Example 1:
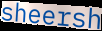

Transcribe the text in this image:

sheersh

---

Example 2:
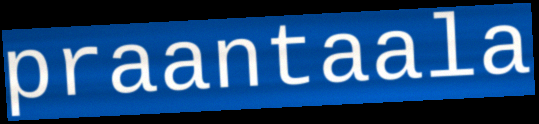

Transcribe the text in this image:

praantaala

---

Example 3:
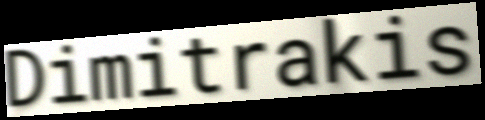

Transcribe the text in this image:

Dimitrakis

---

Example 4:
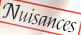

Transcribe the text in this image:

Nuisances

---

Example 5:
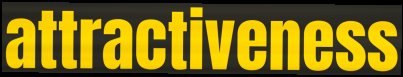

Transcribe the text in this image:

attractiveness